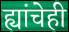
ह्यांचेही